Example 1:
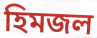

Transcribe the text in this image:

হিমজল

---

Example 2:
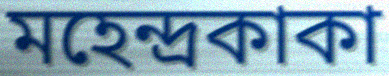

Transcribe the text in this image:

মহেন্দ্রকাকা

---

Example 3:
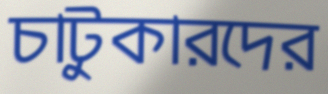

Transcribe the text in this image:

চাটুকারদের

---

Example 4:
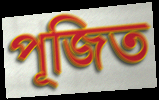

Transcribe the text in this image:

পূজিত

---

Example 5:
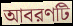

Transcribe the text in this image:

আবরণটি